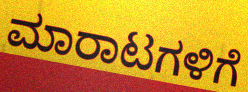
ಮಾರಾಟಗಳಿಗೆ